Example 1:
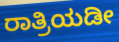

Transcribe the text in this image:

ರಾತ್ರಿಯಡೀ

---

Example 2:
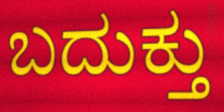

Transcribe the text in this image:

ಬದುಕ್ತು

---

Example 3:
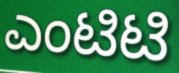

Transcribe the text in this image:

ಎಂಟಿಟಿ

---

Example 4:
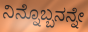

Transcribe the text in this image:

ನಿನ್ನೊಬ್ಬನನ್ನೇ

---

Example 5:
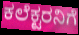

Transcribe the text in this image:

ಕಲೆಕ್ಟರನಿಗೆ